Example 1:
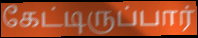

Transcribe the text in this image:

கேட்டிருப்பார்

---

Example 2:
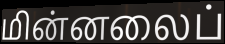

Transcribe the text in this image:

மின்னலைப்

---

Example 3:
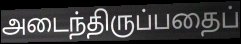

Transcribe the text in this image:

அடைந்திருப்பதைப்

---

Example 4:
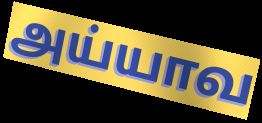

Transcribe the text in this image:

அய்யாவ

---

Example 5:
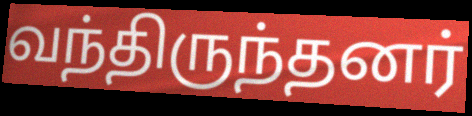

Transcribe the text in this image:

வந்திருந்தனர்